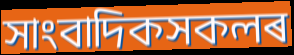
সাংবাদিকসকলৰ